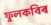
ফুলকবিৰ